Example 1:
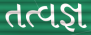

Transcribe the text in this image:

તત્વજ્ઞ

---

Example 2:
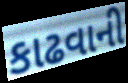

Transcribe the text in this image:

કાઢવાની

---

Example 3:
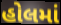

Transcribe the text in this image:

હોલમાં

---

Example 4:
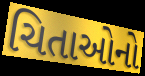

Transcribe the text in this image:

ચિતાઓનો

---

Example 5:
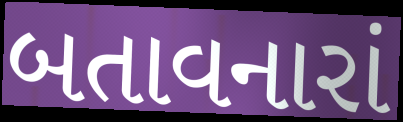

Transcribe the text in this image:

બતાવનારાં